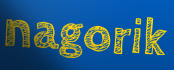
nagorik